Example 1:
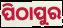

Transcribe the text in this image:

ପିଠାପୁର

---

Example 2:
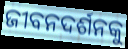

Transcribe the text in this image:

ଜୀବନଦର୍ଶନକୁ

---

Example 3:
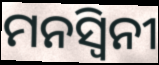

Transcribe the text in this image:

ମନସ୍ୱିନୀ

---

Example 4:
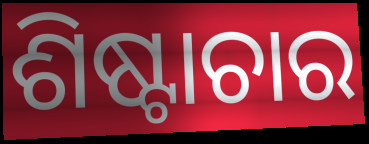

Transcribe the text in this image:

ଶିଷ୍ଟାଚାର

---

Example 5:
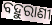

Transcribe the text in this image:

ବହୁରାଣୀ